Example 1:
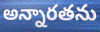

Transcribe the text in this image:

అన్నారతను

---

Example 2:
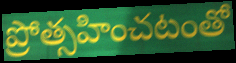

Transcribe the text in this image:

ప్రోత్సహించటంతో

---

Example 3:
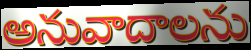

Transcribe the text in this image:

అనువాదాలను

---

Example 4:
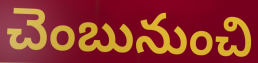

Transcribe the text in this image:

చెంబునుంచి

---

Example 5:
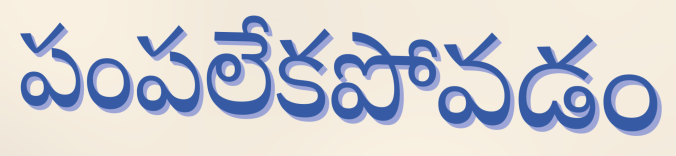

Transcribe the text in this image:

పంపలేకపోవడం